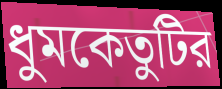
ধুমকেতুটির